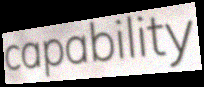
capability